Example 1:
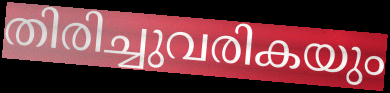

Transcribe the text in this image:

തിരിച്ചുവരികയും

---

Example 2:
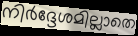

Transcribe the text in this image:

നിർദ്ദേശമില്ലാതെ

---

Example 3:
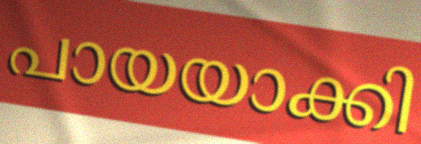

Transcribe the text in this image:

പായയാക്കി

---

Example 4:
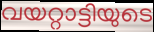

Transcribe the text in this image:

വയറ്റാട്ടിയുടെ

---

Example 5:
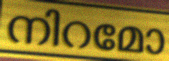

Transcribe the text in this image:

നിറമോ